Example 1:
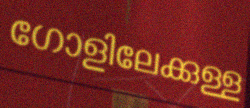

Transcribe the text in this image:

ഗോളിലേക്കുള്ള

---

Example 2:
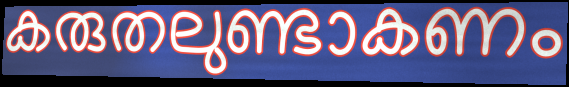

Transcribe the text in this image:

കരുതലുണ്ടാകണം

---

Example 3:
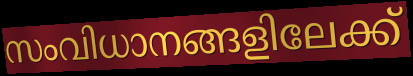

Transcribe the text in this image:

സംവിധാനങ്ങളിലേക്ക്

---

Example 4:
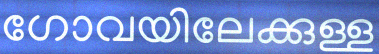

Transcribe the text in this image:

ഗോവയിലേക്കുള്ള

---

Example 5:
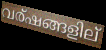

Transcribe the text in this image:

വര്ഷങ്ങളില്